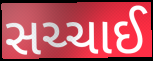
સચ્ચાઈ